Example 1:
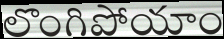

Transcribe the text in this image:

లొంగిపోయాం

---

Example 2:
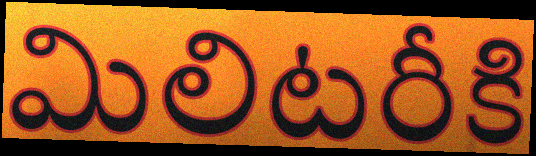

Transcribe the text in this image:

మిలిటరీకి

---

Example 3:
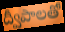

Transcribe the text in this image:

ద్వీపాలతో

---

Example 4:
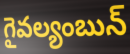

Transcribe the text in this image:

గైవల్యంబున్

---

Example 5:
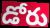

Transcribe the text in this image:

డోరు